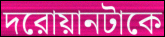
দরোয়ানটাকে